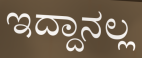
ಇದ್ದಾನಲ್ಲ